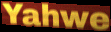
Yahwe